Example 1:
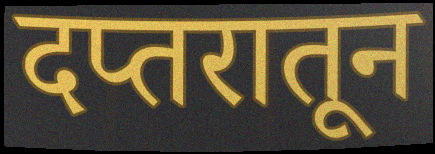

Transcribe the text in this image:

दप्तरातून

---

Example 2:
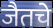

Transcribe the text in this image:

जैतचे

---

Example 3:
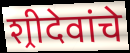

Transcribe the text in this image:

श्रीदेवांचे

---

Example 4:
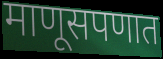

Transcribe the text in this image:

माणूसपणात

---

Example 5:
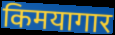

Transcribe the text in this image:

किमयागार